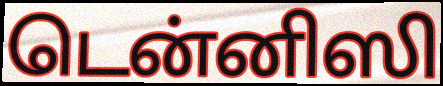
டென்னிஸி